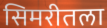
सिमरीतला